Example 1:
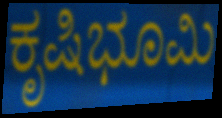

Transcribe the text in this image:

ಕೃಷಿಭೂಮಿ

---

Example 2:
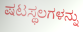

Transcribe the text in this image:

ಷಟಸ್ಥಲಗಳನ್ನು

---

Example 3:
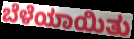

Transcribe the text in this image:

ಬೆಳೆಯಾಯಿತು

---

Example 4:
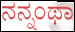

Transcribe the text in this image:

ನನ್ನಂಥಾ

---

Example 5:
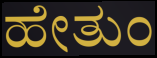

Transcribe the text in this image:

ಹೇತುಂ